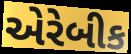
એરેબીક